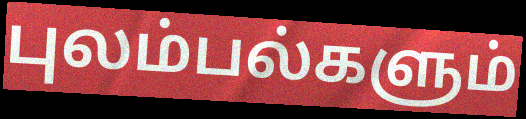
புலம்பல்களும்